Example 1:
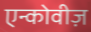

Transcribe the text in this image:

एन्कोवीज़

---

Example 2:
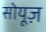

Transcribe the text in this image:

सोयूज़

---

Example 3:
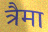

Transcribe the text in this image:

त्रैमा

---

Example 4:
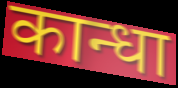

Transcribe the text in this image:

कान्धा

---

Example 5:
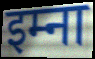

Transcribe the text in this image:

इम्ना